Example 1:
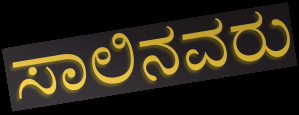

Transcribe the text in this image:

ಸಾಲಿನವರು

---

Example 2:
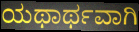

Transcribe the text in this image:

ಯಥಾರ್ಥವಾಗಿ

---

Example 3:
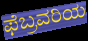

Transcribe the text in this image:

ಫೆಬ್ರವರಿಯ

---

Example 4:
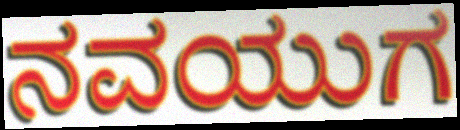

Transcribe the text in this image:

ನವಯುಗ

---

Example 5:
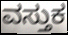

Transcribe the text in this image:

ವಸ್ತುಕ